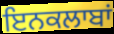
ਇਨਕਲਾਬਾਂ